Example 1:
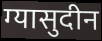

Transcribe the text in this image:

ग्यासुदीन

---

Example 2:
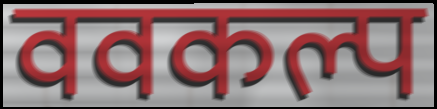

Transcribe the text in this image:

ववकल्प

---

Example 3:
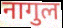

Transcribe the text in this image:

नागुल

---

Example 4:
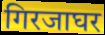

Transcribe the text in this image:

गिरजाघर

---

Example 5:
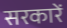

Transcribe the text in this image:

सरकारें